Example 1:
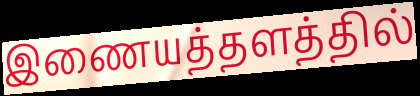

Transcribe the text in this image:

இணையத்தளத்தில்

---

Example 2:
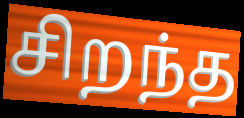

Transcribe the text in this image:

சிறந்த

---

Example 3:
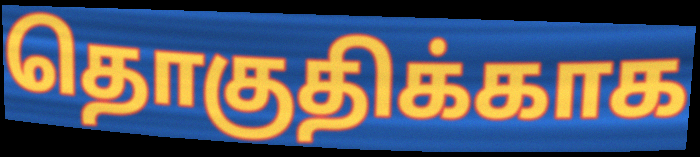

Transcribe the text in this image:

தொகுதிக்காக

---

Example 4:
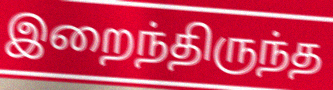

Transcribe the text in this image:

இறைந்திருந்த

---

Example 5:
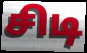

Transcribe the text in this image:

சிடி